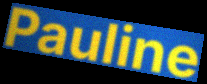
Pauline